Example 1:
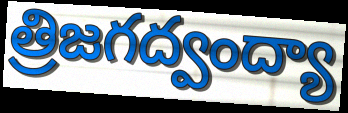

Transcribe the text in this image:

త్రిజగద్వంద్యా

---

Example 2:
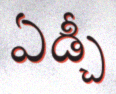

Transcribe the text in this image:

ఏడ్చీ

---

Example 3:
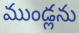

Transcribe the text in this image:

ముండ్లను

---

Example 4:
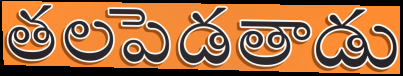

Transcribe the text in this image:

తలపెడతాడు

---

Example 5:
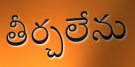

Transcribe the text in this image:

తీర్చలేను